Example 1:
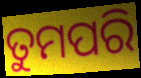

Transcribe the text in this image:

ତୁମପରି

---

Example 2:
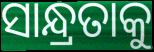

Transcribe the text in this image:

ସାନ୍ଧ୍ରତାକୁ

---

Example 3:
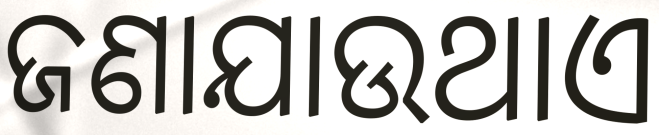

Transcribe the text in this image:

ଜଣାଯାଉଥାଏ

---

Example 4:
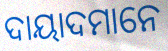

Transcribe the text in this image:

ଦାୟାଦମାନେ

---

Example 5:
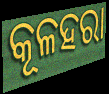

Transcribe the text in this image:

କୂଳହରା